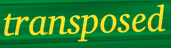
transposed